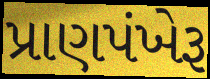
પ્રાણપંખેરૂ